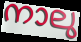
നാലു